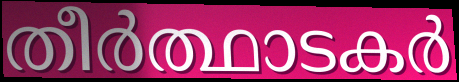
തീർത്ഥാടകർ